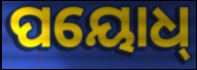
ପୟୋଧ୍